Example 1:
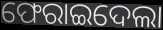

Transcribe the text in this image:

ଫେରାଇଦେଲା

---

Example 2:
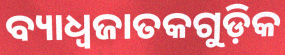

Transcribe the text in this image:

ବ୍ୟାଧ୍ଵଜାତକଗୁଡ଼ିକ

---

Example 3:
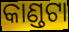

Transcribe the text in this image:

କାଣ୍ଡଟା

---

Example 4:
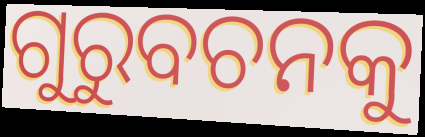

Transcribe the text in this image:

ଗୁରୁବଚନକୁ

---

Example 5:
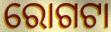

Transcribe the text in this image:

ରୋଗଟା